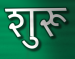
शुरू